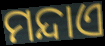
ମନ୍ଦାଏ